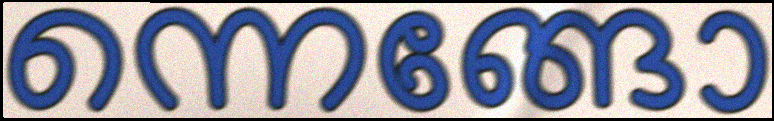
ന്നെങ്ങോ